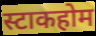
स्टाकहोम